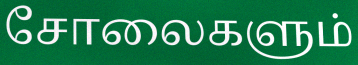
சோலைகளும்